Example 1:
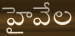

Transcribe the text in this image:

హైవేల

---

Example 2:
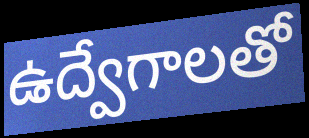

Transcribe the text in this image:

ఉద్వేగాలతో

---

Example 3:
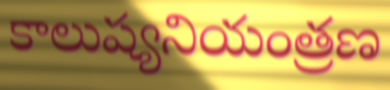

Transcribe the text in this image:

కాలుష్యనియంత్రణ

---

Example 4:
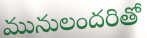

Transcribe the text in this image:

మునులందరితో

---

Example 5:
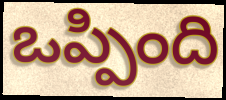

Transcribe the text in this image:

ఒప్పింది